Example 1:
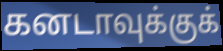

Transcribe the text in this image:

கனடாவுக்குக்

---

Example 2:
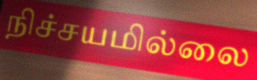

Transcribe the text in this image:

நிச்சயமில்லை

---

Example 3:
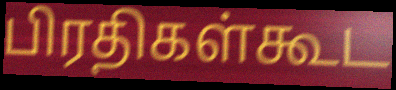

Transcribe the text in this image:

பிரதிகள்கூட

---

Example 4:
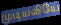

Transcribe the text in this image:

முடியலியே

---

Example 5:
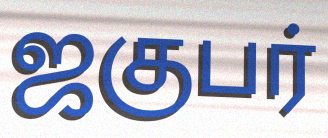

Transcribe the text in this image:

ஜகுபர்